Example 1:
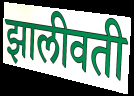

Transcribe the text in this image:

झालीवती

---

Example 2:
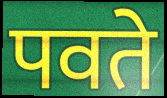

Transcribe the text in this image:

पवते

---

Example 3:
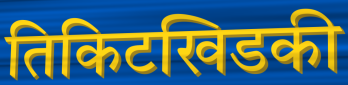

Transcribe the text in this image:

तिकिटखिडकी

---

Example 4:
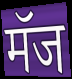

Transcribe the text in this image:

मॅज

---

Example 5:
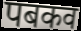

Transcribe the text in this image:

पबकव